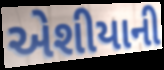
એશીયાની